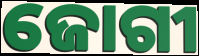
ଜୋଗୀ